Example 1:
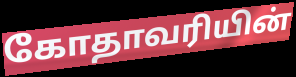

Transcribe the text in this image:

கோதாவரியின்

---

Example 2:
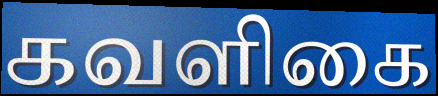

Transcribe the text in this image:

கவளிகை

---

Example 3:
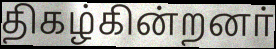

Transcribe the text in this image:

திகழ்கின்றனர்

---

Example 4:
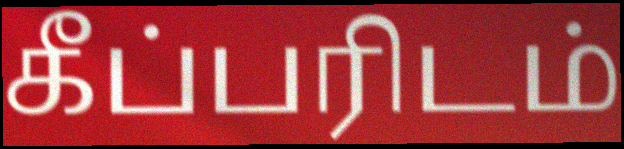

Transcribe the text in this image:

கீப்பரிடம்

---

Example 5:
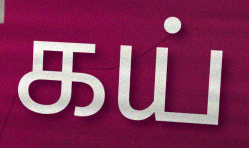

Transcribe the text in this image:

கய்